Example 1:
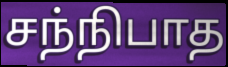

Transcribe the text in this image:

சந்நிபாத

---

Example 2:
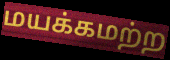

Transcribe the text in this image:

மயக்கமற்ற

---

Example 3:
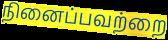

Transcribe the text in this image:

நினைப்பவற்றை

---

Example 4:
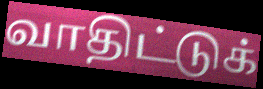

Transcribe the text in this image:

வாதிட்டுக்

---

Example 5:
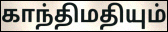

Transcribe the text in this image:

காந்திமதியும்